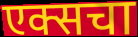
एक्सचा